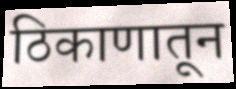
ठिकाणातून